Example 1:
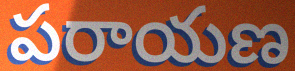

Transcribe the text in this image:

పరాయణ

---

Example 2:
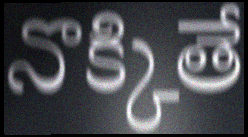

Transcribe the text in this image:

నొక్కితే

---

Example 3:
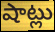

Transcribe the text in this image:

షాట్లు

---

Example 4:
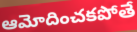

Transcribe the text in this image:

ఆమోదించకపోతే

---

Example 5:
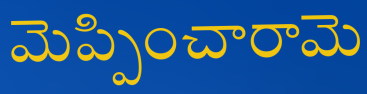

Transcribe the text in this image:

మెప్పించారామె